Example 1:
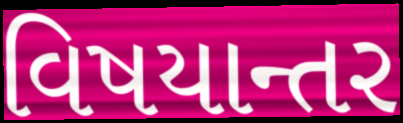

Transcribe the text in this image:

વિષયાન્તર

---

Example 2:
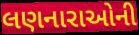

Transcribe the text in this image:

લણનારાઓની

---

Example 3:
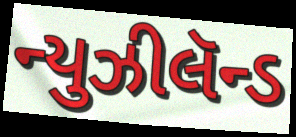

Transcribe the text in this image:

ન્યુઝીલૅન્ડ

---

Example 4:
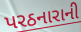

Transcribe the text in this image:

પરઠનારાની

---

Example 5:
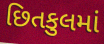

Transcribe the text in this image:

છિતકુલમાં